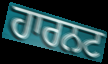
ਹਾਰਨਟ